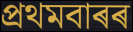
প্ৰথমবাৰৰ